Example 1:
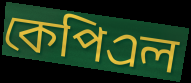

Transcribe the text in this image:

কেপিএল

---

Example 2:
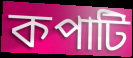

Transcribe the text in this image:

কপাটি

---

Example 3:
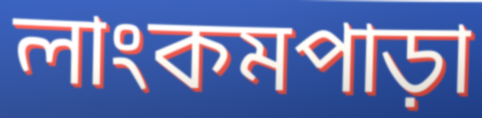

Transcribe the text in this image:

লাংকমপাড়া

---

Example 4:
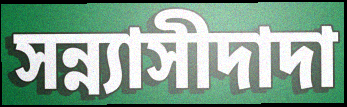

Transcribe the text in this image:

সন্ন্যাসীদাদা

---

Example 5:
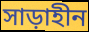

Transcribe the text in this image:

সাড়াহীন